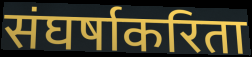
संघर्षाकरिता